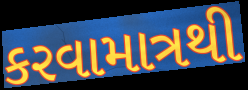
કરવામાત્રથી